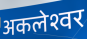
अकलेश्वर